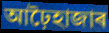
আঢ়ৈহাজাৰ